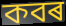
কবৰ